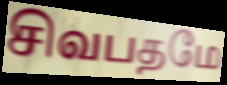
சிவபதமே